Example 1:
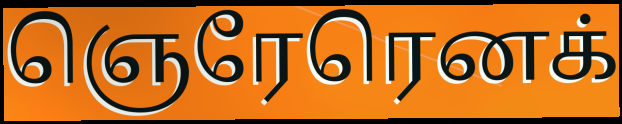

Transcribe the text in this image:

ஞெரேரெனக்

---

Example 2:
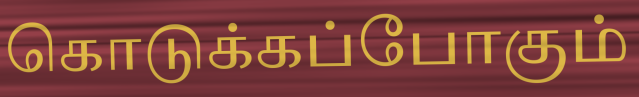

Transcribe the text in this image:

கொடுக்கப்போகும்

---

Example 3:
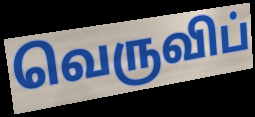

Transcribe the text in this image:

வெருவிப்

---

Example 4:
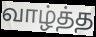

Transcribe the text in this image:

வாழ்த்த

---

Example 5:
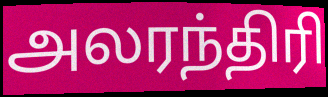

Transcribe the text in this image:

அலரந்திரி